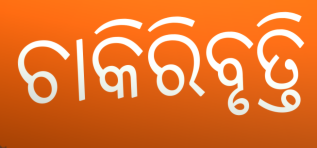
ଚାକିରିବୃତ୍ତି